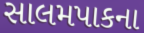
સાલમપાકના